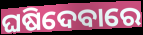
ଘଷିଦେବାରେ